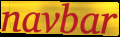
navbar